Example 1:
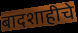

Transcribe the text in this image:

बादशाहीचे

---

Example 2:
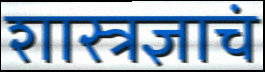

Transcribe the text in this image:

शास्त्रज्ञाचं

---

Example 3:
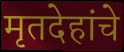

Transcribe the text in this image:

मृतदेहांचे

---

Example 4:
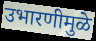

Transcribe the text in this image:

उभारणीमुळे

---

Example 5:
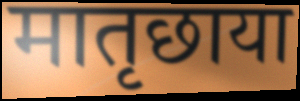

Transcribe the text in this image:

मातृछाया